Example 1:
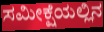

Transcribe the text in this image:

ಸಮೀಕ್ಷೆಯಲ್ಲಿನ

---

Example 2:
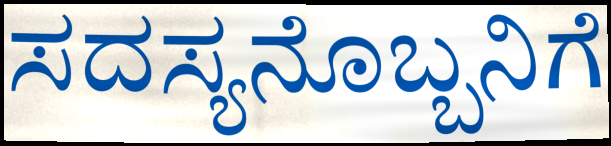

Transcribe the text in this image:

ಸದಸ್ಯನೊಬ್ಬನಿಗೆ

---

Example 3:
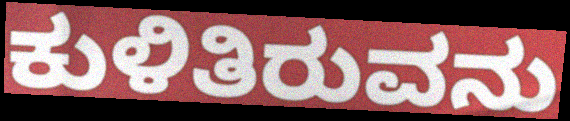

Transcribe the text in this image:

ಕುಳಿತಿರುವನು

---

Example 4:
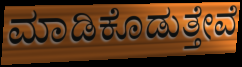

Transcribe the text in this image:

ಮಾಡಿಕೊಡುತ್ತೇವೆ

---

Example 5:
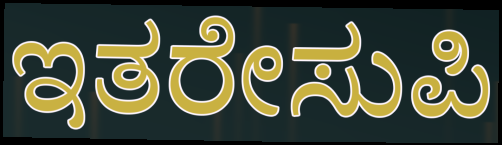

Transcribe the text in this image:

ಇತರೇಸುಪಿ